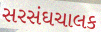
સરસંઘચાલક